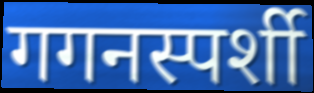
गगनस्पर्शी